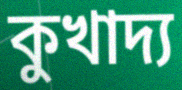
কুখাদ্য